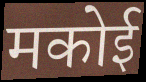
मकोई